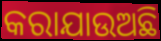
କରାଯାଉଅଛି